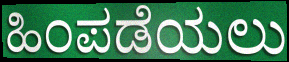
ಹಿಂಪಡೆಯಲು